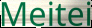
Meitei